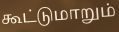
கூட்டுமாறும்